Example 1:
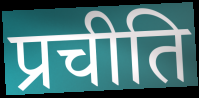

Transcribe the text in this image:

प्रचीति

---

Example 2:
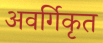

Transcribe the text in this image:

अवर्गिकृत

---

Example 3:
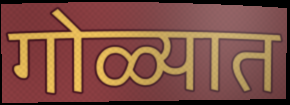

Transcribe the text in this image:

गोळ्यात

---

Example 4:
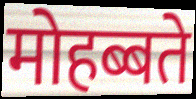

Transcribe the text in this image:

मोहब्बते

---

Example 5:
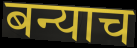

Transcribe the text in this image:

बन्याच